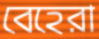
বেহেরা